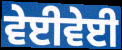
ਵੇਈਵੇਈ